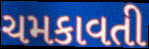
ચમકાવતી